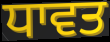
ਧਾਵਤ